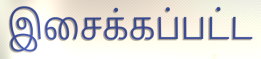
இசைக்கப்பட்ட